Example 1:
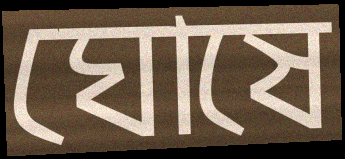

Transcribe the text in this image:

ঘোষে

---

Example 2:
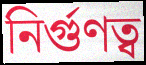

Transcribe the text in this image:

নির্গুণত্ব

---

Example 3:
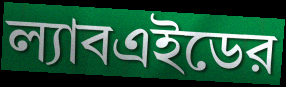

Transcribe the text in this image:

ল্যাবএইডের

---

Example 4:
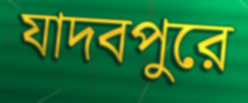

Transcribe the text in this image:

যাদবপুরে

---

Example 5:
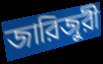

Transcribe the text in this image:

জারিজুরী